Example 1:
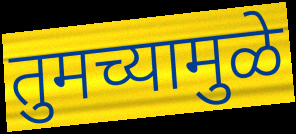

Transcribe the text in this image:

तुमच्यामुळे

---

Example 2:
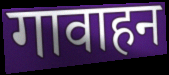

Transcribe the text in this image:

गावाहन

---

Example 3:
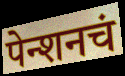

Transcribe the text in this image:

पेन्शनचं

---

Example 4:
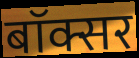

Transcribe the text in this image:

बॉक्सर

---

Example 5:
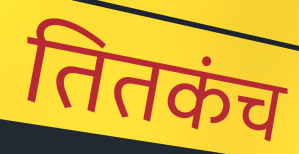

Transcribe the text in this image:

तितकंच